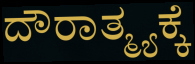
ದೌರಾತ್ಮ್ಯಕ್ಕೆ